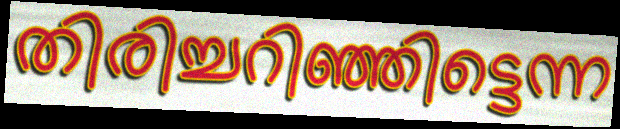
തിരിച്ചറിഞ്ഞിട്ടെന്ന